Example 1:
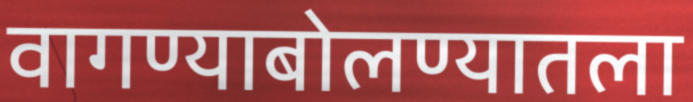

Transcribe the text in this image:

वागण्याबोलण्यातला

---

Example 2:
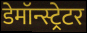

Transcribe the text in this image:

डेमॉन्स्ट्रेटर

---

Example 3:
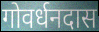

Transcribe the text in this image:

गोवर्धनदास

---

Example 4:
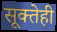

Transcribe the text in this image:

सूक्तेही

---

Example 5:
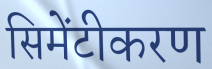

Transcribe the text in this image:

सिमेंटीकरण